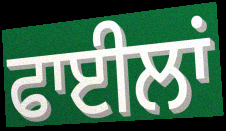
ਫਾਈਲਾਂ